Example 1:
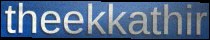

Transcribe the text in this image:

theekkathir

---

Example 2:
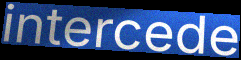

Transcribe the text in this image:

intercede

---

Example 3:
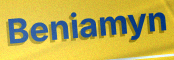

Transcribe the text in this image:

Beniamyn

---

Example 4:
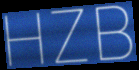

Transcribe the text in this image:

HZB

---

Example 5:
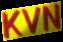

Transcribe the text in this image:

KVN